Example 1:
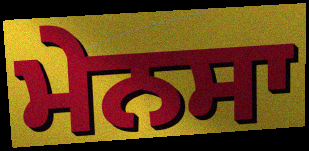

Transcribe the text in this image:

ਮੇਨਸਾ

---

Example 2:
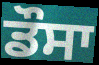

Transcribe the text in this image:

ਡੌਸਾ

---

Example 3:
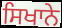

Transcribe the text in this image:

ਸਿਖਾਨੇ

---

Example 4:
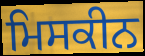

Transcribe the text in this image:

ਮਿਸਕੀਨ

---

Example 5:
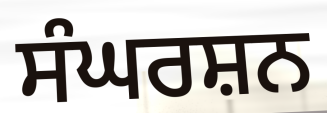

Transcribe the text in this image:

ਸੰਘਰਸ਼ਨ